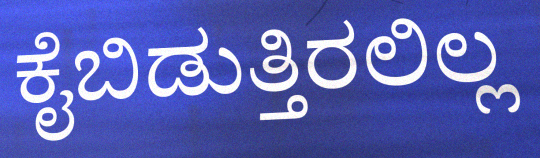
ಕೈಬಿಡುತ್ತಿರಲಿಲ್ಲ